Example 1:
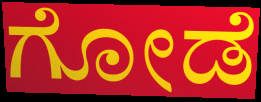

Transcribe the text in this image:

ಗೋಡೆ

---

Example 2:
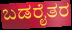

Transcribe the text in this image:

ಬಡರೈತರ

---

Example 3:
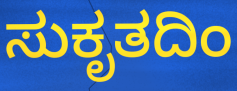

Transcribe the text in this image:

ಸುಕೃತದಿಂ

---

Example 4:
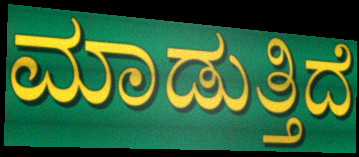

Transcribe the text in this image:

ಮಾಡುತ್ತಿದೆ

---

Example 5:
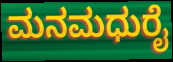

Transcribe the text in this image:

ಮನಮಧುರೈ